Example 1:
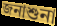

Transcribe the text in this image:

জনাশুনা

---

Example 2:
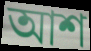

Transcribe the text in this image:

আশ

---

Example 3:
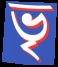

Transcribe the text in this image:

ভৃ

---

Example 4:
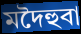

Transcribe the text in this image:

মদৈহুবা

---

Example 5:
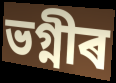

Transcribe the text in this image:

ভগ্নীৰ